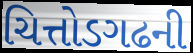
ચિત્તોડગઢની